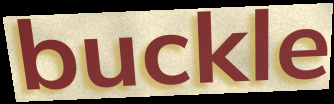
buckle